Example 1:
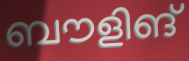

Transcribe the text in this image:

ബൗളിങ്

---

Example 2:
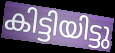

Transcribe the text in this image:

കിട്ടിയിട്ടു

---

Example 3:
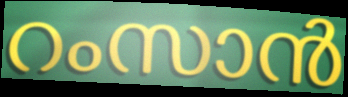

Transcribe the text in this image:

റംസാൻ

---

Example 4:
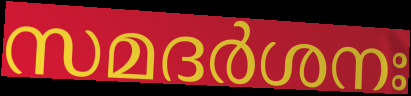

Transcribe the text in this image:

സമദർശനഃ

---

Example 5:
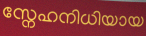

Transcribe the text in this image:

സ്നേഹനിധിയായ